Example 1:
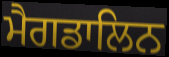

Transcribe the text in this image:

ਮੈਗਡਾਲਿਨ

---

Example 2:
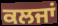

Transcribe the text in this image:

ਕਲਜਾਂ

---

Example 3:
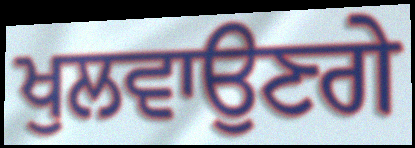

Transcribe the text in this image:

ਖੁਲਵਾਉਣਗੇ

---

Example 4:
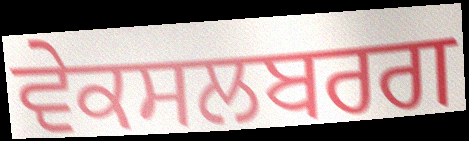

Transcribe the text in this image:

ਵੇਕਸਲਬਰਗ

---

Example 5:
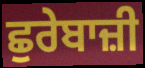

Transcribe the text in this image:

ਛੁਰੇਬਾਜ਼ੀ